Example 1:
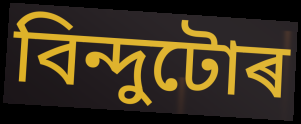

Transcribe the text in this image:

বিন্দুটোৰ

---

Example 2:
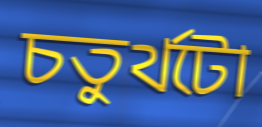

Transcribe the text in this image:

চতুৰ্থটো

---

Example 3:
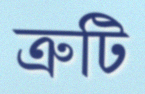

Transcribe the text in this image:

ত্ৰুটি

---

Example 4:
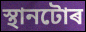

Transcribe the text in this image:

স্থানটোৰ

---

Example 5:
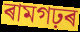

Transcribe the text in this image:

ৰামগঢ়ৰ